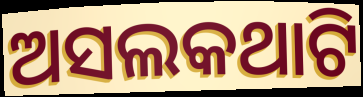
ଅସଲକଥାଟି